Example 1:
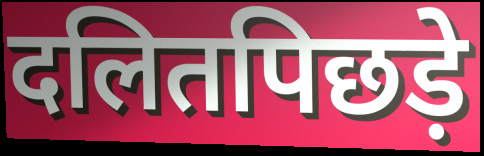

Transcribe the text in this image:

दलितपिछड़े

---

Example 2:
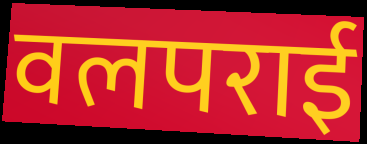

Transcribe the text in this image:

वलपराई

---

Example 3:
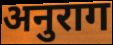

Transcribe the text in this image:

अनुराग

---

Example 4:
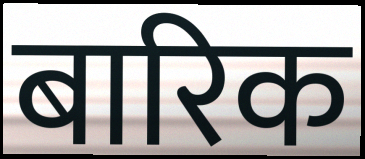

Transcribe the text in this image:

बारिक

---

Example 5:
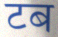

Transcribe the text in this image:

टब